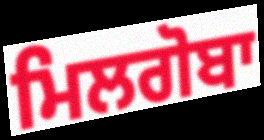
ਮਿਲਗੋਬਾ